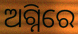
ଅଗ୍ନିରେ